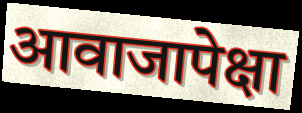
आवाजापेक्षा